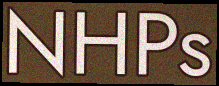
NHPs